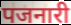
पजनारी